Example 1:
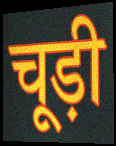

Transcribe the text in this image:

चूड़ी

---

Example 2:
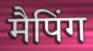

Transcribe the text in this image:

मैपिंग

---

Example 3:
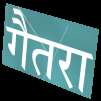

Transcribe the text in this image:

गैतरा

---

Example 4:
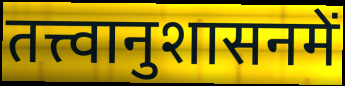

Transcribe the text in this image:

तत्त्वानुशासनमें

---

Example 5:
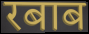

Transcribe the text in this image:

रबाब